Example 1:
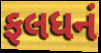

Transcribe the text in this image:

ફલધનં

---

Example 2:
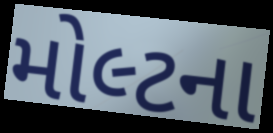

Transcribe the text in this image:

મોલ્ટના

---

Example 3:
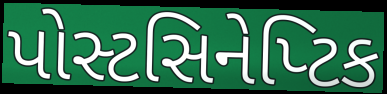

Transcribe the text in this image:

પોસ્ટસિનેપ્ટિક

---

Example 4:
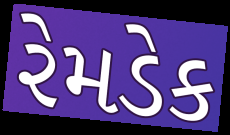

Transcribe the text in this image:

રેમડેક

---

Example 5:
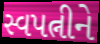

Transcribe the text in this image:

સ્વપત્નીને